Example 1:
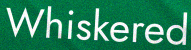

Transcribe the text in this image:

Whiskered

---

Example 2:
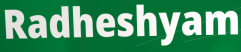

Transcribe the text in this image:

Radheshyam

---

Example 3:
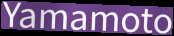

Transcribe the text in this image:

Yamamoto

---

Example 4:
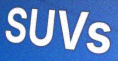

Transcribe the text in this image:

SUVs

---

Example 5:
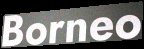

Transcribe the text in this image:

Borneo